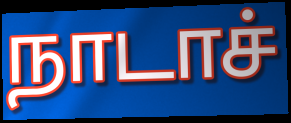
நாடாச்